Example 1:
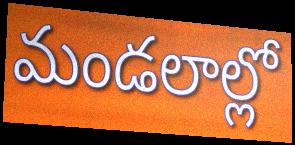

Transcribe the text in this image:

మండలాల్లో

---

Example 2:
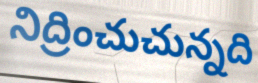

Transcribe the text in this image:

నిద్రించుచున్నది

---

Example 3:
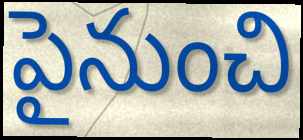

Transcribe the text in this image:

పైనుంచి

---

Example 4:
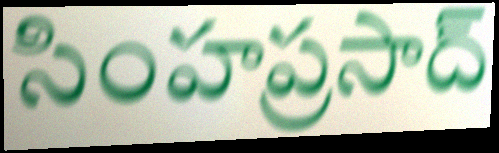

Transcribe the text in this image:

సింహప్రసాద్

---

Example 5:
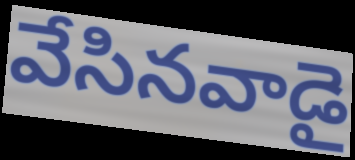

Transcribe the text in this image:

వేసినవాడై